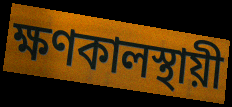
ক্ষণকালস্থায়ী